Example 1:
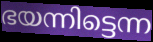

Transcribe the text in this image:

ഭയന്നിട്ടെന്ന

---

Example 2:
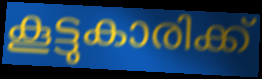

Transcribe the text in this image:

കൂട്ടുകാരിക്ക്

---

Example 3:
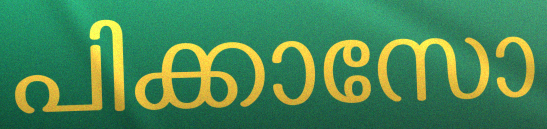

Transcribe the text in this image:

പിക്കാസോ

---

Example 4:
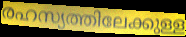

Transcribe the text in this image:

രഹസ്യത്തിലേക്കുള്ള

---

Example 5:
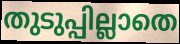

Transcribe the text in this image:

തുടുപ്പില്ലാതെ